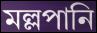
মল্লপানি